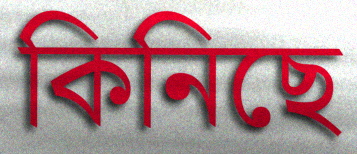
কিনিছে